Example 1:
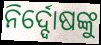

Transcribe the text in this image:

ନିର୍ଦ୍ଦୋଷଙ୍କୁ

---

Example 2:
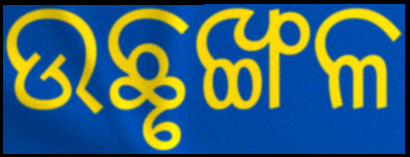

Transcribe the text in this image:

ଉଛୃଙ୍ଖଳ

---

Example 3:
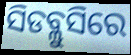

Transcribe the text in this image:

ସିଡବ୍ଲୁସିରେ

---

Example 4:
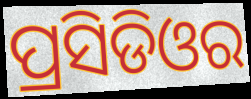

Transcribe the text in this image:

ପ୍ରସିଡିଓର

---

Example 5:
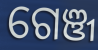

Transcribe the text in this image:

ଗେଞ୍ଜ